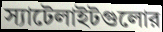
স্যাটেলাইটগুলোর